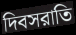
দিবসরাতি